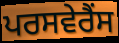
ਪਰਸਵੇਰੈਂਸ